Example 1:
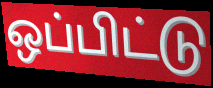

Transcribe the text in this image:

ஒப்பிட்டு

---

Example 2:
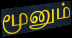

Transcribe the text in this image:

மூனும்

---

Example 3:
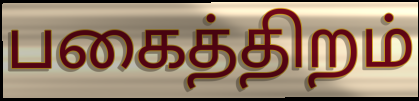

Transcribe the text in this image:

பகைத்திறம்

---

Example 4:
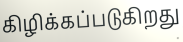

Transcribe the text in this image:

கிழிக்கப்படுகிறது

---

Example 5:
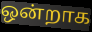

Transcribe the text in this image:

ஒன்றாக